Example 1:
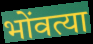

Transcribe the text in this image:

भोंवत्या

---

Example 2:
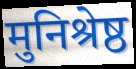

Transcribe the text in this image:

मुनिश्रेष्ठ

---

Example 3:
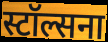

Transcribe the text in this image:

स्टॉल्सना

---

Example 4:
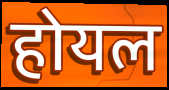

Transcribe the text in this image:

होयल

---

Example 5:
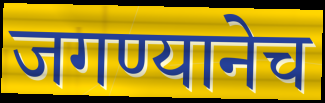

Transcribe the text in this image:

जगण्यानेच